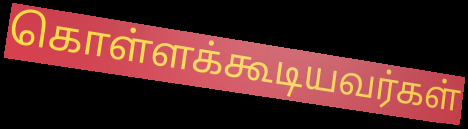
கொள்ளக்கூடியவர்கள்